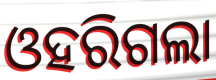
ଓହରିଗଲା